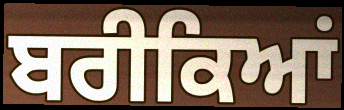
ਬਰੀਕਿਆਂ